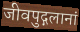
जीवपुद्गलानां